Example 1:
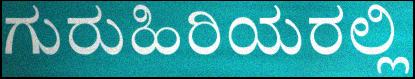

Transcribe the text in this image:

ಗುರುಹಿರಿಯರಲ್ಲಿ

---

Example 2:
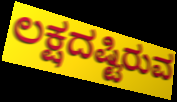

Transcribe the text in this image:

ಲಕ್ಷದಷ್ಟಿರುವ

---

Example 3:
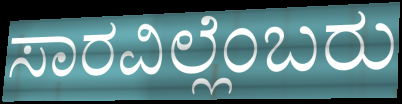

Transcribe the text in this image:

ಸಾರವಿಲ್ಲೆಂಬರು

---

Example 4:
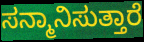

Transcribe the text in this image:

ಸನ್ಮಾನಿಸುತ್ತಾರೆ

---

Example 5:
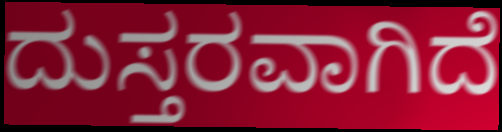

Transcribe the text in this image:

ದುಸ್ತರವಾಗಿದೆ